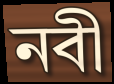
নবী